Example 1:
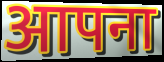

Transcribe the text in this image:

आपना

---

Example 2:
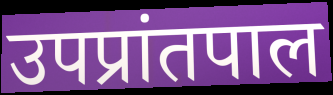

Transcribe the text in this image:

उपप्रांतपाल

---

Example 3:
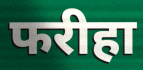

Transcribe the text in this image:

फरीहा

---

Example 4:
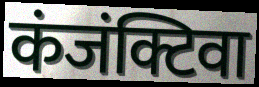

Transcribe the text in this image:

कंजंक्टिवा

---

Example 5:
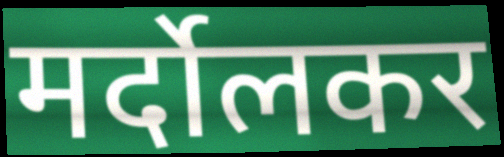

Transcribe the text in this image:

मर्दोलकर